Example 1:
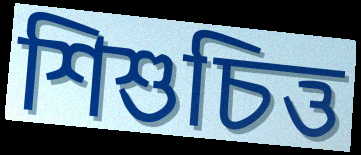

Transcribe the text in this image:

শিশুচিত্ত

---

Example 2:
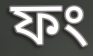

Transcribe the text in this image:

ফং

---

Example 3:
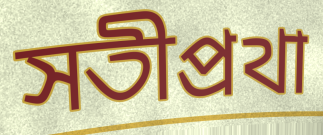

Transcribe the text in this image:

সতীপ্রথা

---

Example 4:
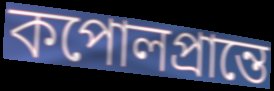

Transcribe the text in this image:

কপোলপ্রান্তে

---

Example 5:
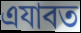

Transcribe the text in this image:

এযাবত